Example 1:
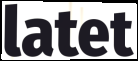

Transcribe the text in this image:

latet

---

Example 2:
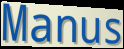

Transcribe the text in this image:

Manus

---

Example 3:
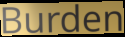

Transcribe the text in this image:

Burden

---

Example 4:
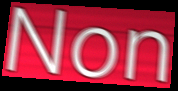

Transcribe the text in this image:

Non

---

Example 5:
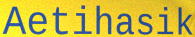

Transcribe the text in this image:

Aetihasik